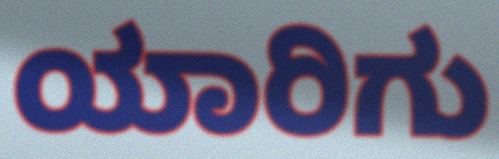
ಯಾರಿಗು